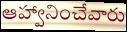
ఆహ్వానించేవారు